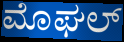
ಮೊಘಲ್